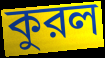
কুরল